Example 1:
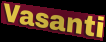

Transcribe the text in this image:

Vasanti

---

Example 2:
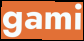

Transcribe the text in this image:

gami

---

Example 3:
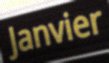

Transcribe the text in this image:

Janvier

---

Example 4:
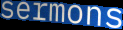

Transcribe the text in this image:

sermons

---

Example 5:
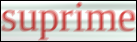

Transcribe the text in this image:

suprime